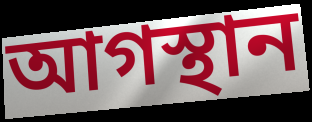
আগস্থান